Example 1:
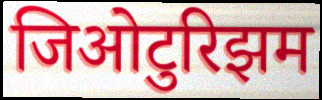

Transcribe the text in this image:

जिओटुरिझम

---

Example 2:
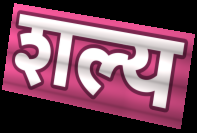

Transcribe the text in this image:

शल्य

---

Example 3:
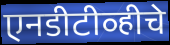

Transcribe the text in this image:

एनडीटीव्हीचे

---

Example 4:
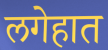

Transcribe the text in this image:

लगेहात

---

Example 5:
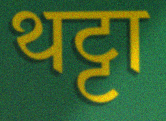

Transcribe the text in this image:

थट्टा